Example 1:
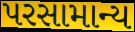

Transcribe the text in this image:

પરસામાન્ય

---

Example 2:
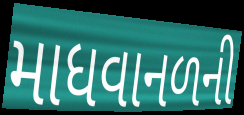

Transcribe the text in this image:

માધવાનળની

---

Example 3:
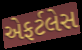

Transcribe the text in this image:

એફર્ટલેસ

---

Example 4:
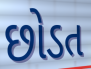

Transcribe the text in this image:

છોડત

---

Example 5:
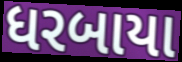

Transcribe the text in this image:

ધરબાયા